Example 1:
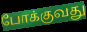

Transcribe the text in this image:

போக்குவது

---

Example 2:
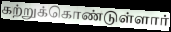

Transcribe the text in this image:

கற்றுக்கொண்டுள்ளார்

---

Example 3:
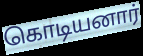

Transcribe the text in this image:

கொடியனார்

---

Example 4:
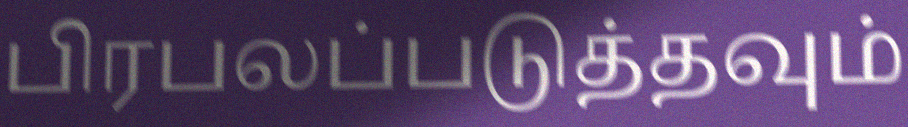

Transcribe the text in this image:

பிரபலப்படுத்தவும்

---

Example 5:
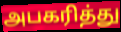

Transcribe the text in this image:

அபகரித்து